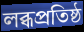
লব্ধপ্রতিষ্ঠ